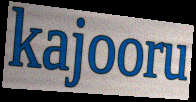
kajooru